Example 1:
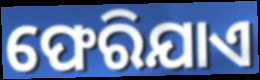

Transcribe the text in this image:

ଫେରିଯାଏ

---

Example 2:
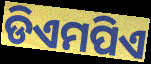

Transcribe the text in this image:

ଡିଏମପିଏ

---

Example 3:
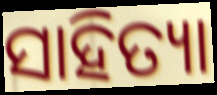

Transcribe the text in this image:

ସାହିତ୍ୟା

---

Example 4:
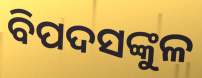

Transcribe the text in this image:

ବିପଦସଙ୍କୁଳ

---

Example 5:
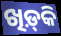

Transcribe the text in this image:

ଖିଡ଼୍‌କି